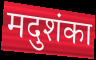
मदुशंका